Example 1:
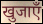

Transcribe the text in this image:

खुजाएँ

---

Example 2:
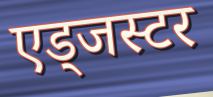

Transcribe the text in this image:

एड्जस्टर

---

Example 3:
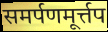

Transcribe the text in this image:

समर्पणमूर्त्तप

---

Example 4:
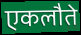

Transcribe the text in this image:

एकलौते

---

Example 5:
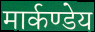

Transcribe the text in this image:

मार्कण्डेय